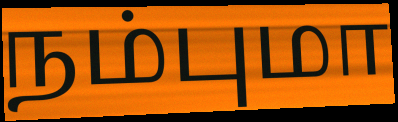
நம்புமா